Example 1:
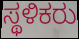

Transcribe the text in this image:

ಸ್ಥಳಿಕರು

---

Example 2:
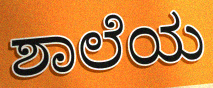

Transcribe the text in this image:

ಶಾಲೆಯ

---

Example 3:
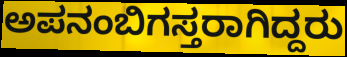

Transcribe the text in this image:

ಅಪನಂಬಿಗಸ್ತರಾಗಿದ್ದರು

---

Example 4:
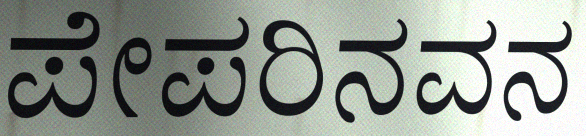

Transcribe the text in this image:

ಪೇಪರಿನವನ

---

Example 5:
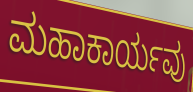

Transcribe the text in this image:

ಮಹಾಕಾರ್ಯವು